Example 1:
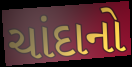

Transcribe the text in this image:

ચાંદાનો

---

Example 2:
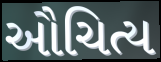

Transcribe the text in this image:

ઔચિત્ય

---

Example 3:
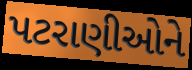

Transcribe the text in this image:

પટરાણીઓને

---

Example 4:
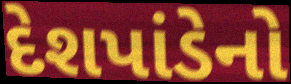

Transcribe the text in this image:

દેશપાંડેનો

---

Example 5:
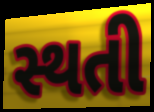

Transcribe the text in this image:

સ્થતી